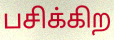
பசிக்கிற